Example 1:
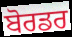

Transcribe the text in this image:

ਬੋਰਡਰ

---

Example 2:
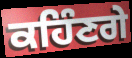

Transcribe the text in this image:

ਕਹਿੰਣਗੇ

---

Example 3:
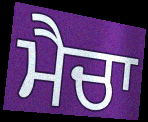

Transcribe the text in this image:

ਮੈਚਾ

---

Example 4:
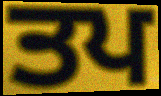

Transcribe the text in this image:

ਤਪ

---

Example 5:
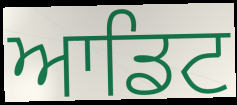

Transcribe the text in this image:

ਆਡਿਟ